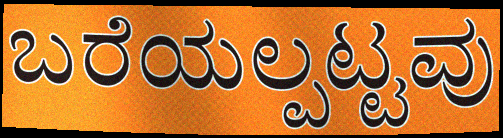
ಬರೆಯಲ್ಪಟ್ಟವು